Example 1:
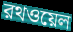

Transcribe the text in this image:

রথওয়েল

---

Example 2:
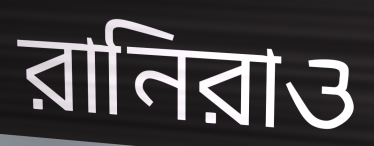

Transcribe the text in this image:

রানিরাও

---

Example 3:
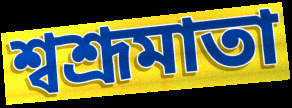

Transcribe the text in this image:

শ্বশ্রূমাতা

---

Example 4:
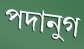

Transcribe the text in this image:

পদানুগ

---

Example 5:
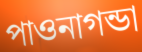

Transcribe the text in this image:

পাওনাগন্ডা